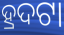
ହ୍ରଦଟା